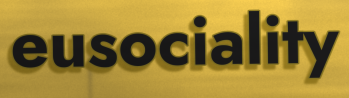
eusociality